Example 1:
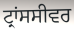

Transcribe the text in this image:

ਟ੍ਰਾਂਸਸੀਵਰ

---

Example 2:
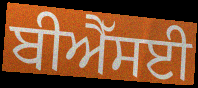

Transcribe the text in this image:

ਬੀਐੱਸਈ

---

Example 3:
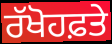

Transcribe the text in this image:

ਰੱਖੋਹਫ਼ਤੇ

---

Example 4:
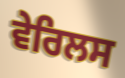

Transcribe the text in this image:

ਵੇਰਿਲਸ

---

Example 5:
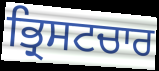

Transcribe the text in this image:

ਭ੍ਰਿਸਟਚਾਰ